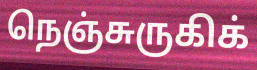
நெஞ்சுருகிக்